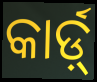
କାର୍ଡ଼୍